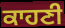
ਕਾਹਣੀ